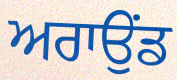
ਅਰਾਉਂਡ